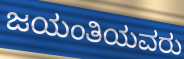
ಜಯಂತಿಯವರು